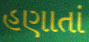
હણાતાં